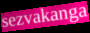
sezvakanga